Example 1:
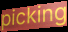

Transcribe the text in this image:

picking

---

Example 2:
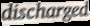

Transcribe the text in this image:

discharged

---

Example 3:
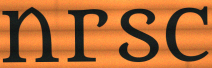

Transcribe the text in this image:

nrsc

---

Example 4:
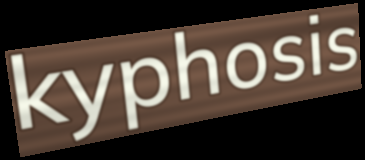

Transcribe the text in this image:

kyphosis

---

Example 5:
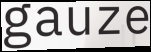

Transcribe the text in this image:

gauze